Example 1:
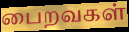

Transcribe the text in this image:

பைறவகள்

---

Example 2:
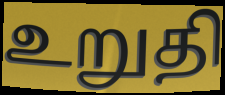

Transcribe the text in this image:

உறுதி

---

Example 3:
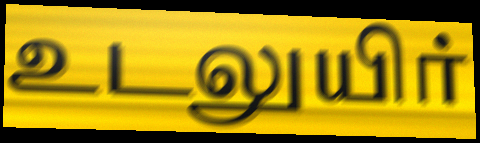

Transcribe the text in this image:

உடலுயிர்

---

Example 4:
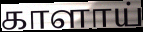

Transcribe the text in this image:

காளாய்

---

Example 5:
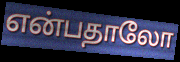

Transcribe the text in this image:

என்பதாலோ